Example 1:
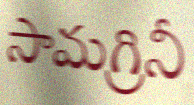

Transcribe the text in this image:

సామగ్రినీ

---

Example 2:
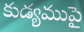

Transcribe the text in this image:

కుడ్యముపై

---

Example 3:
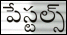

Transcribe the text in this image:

పేస్టల్స్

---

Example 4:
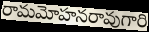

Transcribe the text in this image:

రామమోహనరావుగారి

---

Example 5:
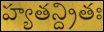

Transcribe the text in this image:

హ్యతన్ద్రితః